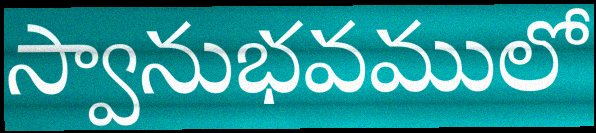
స్వానుభవములో